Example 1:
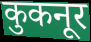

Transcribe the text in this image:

कुकनूर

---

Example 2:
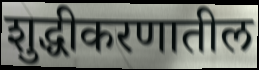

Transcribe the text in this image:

शुद्धीकरणातील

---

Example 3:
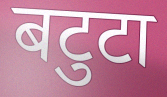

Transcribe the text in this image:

बटुटा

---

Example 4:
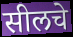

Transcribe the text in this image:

सीलचे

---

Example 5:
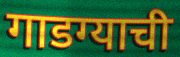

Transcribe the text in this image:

गाडग्याची